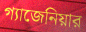
গ্যাজেনিয়ার